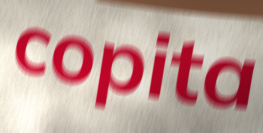
copita